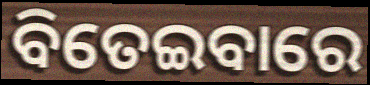
ବିତେଇବାରେ